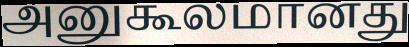
அனுகூலமானது